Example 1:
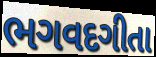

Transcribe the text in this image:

ભગવદગીતા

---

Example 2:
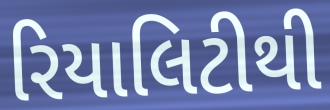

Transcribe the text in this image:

રિયાલિટીથી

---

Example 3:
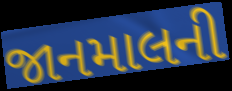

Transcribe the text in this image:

જાનમાલની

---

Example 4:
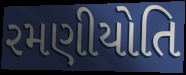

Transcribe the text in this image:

રમણીયોતિ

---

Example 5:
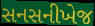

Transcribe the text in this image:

સનસનીખેજ